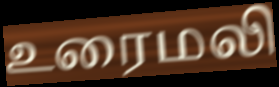
உரைமலி